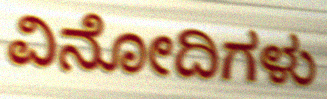
ವಿನೋದಿಗಳು